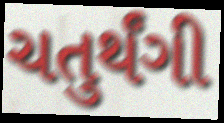
ચતુર્થંગી